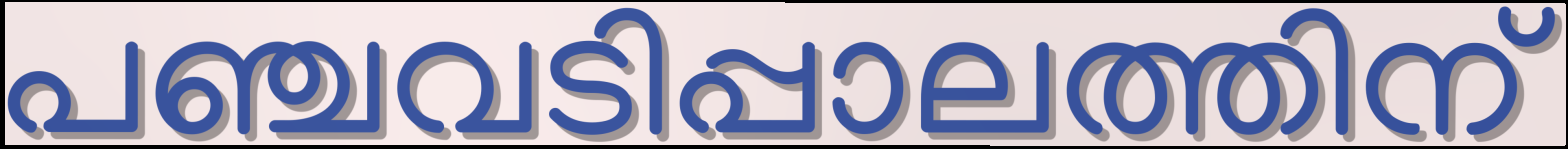
പഞ്ചവടിപ്പാലത്തിന്